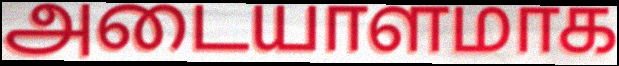
அடையாளமாக